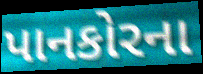
પાનકોરના